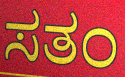
ಸತಂ